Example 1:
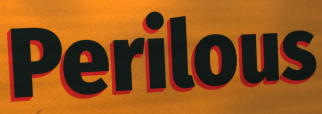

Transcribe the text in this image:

Perilous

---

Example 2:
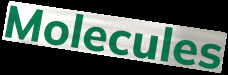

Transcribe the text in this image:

Molecules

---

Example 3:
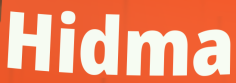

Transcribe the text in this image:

Hidma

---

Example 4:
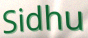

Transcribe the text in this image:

Sidhu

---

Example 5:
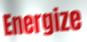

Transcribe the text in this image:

Energize